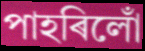
পাহৰিলোঁ